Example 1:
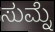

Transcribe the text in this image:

ಸುಮ್ನೆ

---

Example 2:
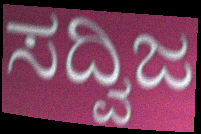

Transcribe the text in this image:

ಸದ್ವಿಜ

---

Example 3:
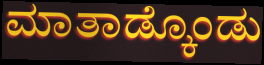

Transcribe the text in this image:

ಮಾತಾಡ್ಕೊಂಡು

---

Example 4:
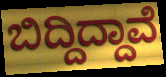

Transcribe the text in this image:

ಬಿದ್ದಿದ್ದಾವೆ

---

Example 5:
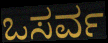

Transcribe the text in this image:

ಒಸರ್ವ